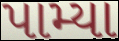
પામ્યા